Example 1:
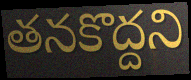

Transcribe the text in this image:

తనకొద్దని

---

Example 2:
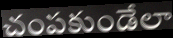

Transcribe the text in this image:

చంపకుండేలా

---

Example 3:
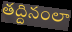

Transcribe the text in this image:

తద్దినంలా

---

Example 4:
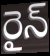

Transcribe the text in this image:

రైన్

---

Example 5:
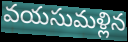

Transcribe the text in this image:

వయసుమళ్లిన